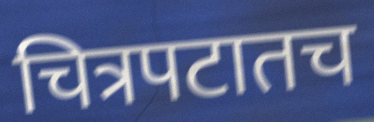
चित्रपटातच